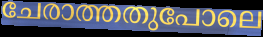
ചേരാത്തതുപോലെ